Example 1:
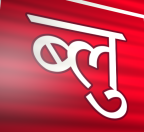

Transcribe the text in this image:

ब्लु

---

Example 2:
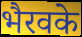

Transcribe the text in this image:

भैरवके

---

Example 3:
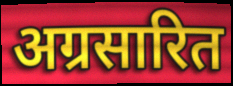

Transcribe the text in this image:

अग्रसारित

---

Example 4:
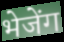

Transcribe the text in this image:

भेजेंग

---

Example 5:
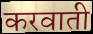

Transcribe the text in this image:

करवाती